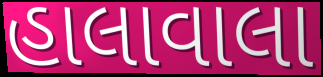
હાલાવાલા